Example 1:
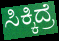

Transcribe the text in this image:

ಸಿಕ್ಕಿದ್ರೆ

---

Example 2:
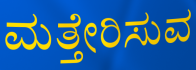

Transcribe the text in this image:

ಮತ್ತೇರಿಸುವ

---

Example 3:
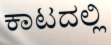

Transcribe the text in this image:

ಕಾಟದಲ್ಲಿ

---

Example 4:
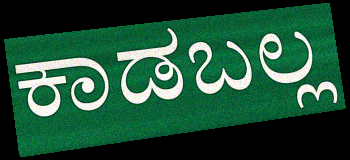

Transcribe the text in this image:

ಕಾಡಬಲ್ಲ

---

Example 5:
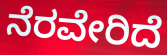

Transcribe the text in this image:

ನೆರವೇರಿದೆ